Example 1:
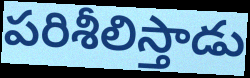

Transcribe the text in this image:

పరిశీలిస్తాడు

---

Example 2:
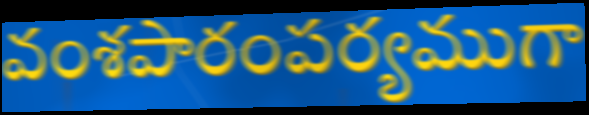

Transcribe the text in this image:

వంశపారంపర్యముగా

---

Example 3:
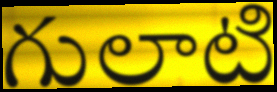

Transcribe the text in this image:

గులాటి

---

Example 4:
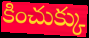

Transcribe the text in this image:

కించుక్కు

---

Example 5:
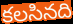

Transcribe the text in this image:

కలసినది